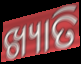
ଖ୍ଯାତି